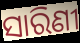
ସାରିଣୀ